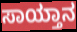
ಸಾಯ್ತಾನ